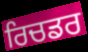
ਰਿਚਡਰ